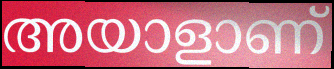
അയാളാണ്